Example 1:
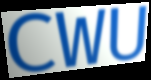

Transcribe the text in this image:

CWU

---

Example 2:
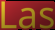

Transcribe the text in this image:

Las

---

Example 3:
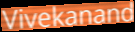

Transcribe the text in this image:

Vivekanand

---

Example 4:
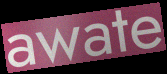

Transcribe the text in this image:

awate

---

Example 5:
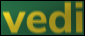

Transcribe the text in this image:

vedi